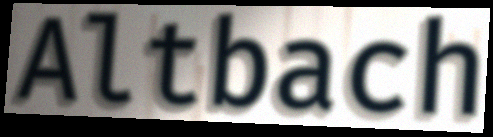
Altbach